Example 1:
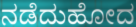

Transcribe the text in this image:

ನಡೆದುಹೋದ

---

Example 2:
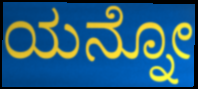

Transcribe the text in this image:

ಯನ್ನೋ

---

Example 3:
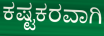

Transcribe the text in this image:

ಕಷ್ಟಕರವಾಗಿ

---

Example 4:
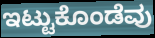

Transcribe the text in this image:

ಇಟ್ಟುಕೊಂಡೆವು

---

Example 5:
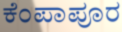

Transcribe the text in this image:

ಕೆಂಪಾಪೂರ